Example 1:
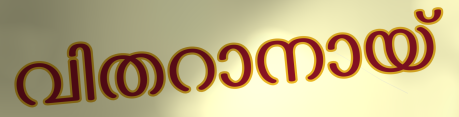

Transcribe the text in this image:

വിതറാനായ്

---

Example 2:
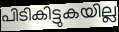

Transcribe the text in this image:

പിടികിട്ടുകയില്ല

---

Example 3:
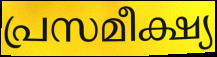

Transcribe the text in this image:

പ്രസമീക്ഷ്യ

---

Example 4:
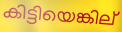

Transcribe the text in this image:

കിട്ടിയെങ്കില്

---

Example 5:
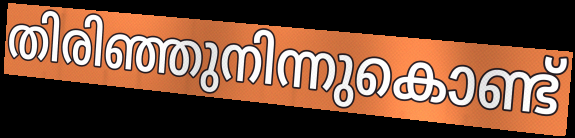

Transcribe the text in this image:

തിരിഞ്ഞുനിന്നുകൊണ്ട്